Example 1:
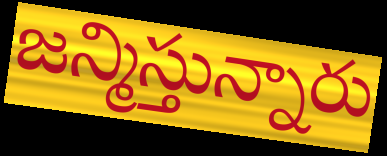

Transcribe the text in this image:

జన్మిస్తున్నారు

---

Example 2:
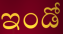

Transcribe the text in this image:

ఇండో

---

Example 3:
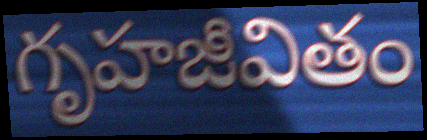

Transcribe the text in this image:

గృహజీవితం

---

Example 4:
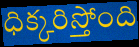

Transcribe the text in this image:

ధిక్కరిస్తోంది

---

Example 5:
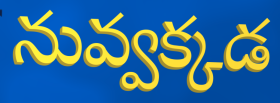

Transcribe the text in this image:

నువ్వక్కడ